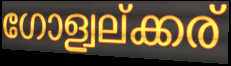
ഗോള്വല്ക്കര്